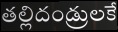
తల్లిదండ్రులకే